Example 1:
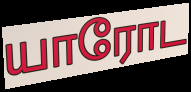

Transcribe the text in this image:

யாரோட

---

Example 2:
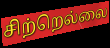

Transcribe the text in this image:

சிற்றெல்லை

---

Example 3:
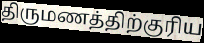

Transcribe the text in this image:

திருமணத்திற்குரிய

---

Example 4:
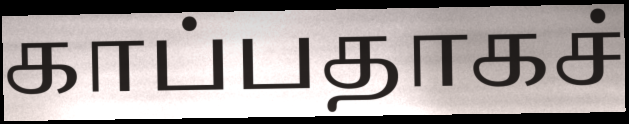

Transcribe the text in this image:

காப்பதாகச்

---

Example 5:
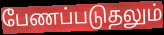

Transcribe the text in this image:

பேணப்படுதலும்